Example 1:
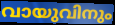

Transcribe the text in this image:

വായുവിനും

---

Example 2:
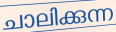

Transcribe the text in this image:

ചാലിക്കുന്ന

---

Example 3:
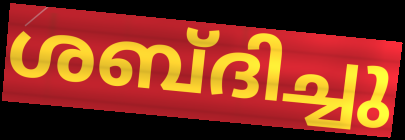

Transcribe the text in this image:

ശബ്ദിച്ചു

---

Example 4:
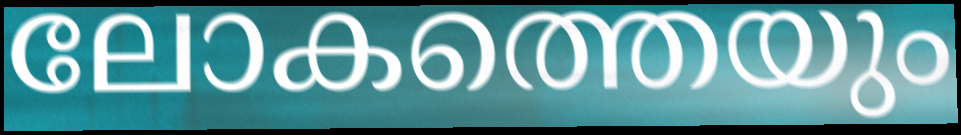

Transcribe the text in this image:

ലോകത്തെയും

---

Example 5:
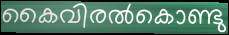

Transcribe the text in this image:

കൈവിരൽകൊണ്ടു